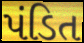
પંડિત